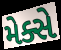
મેક્સે